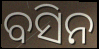
ବସିନ